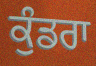
ਕੁੰਡਰਾ